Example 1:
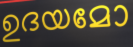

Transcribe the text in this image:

ഉദയമോ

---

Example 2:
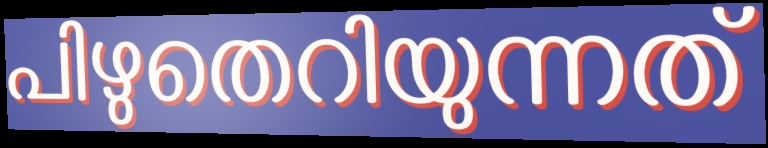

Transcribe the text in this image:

പിഴുതെറിയുന്നത്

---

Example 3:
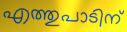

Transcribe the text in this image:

എത്തുപാടിന്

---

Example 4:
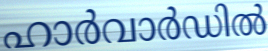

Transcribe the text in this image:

ഹാർവാർഡിൽ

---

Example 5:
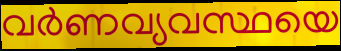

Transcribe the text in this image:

വർണവ്യവസ്ഥയെ